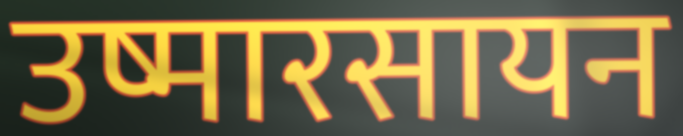
उष्मारसायन